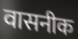
वासनीक